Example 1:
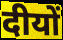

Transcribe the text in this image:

दीयों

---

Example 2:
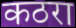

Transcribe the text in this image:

कठरा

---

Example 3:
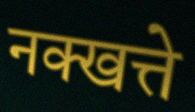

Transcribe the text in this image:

नक्खत्ते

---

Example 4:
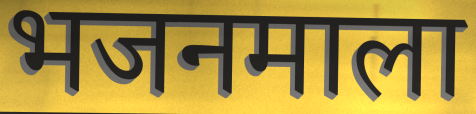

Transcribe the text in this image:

भजनमाला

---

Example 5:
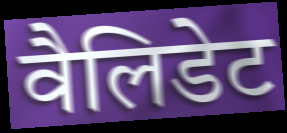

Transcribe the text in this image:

वैलिडेट